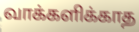
வாக்களிக்காத